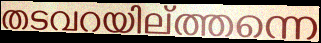
തടവറയില്ത്തന്നെ